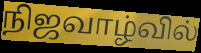
நிஜவாழ்வில்